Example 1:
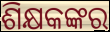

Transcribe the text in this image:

ଶିକ୍ଷକଙ୍କର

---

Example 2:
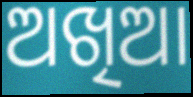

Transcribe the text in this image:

ଅଖିଆ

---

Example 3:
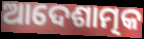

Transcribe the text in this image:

ଆଦେଶାତ୍ମକ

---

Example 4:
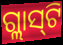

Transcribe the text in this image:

ଗ୍ଲାସ୍‍ଟି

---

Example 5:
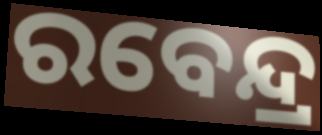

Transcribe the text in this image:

ରବେନ୍ଦ୍ର